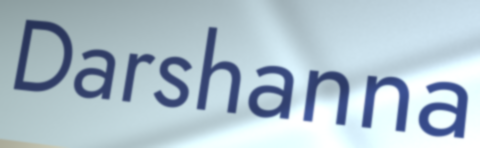
Darshanna